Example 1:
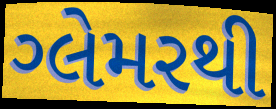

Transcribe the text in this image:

ગ્લેમરથી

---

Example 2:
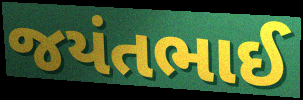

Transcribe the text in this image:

જયંતભાઈ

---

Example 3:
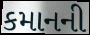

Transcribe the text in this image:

કમાનની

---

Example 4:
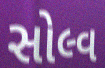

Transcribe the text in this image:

સોલ્વ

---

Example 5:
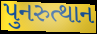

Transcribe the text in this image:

પુનરુત્થાન